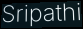
Sripathi